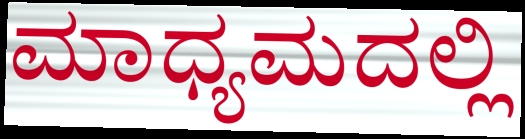
ಮಾಧ್ಯಮದಲ್ಲಿ